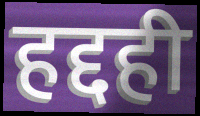
हद्दही